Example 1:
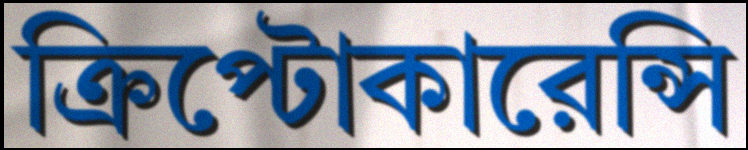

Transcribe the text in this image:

ক্রিপ্টোকারেন্সি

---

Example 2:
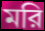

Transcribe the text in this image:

মরি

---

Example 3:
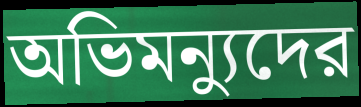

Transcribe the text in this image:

অভিমন্যুদের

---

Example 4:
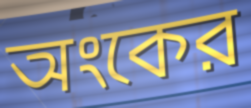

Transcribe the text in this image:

অংকের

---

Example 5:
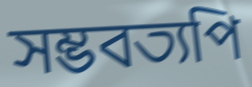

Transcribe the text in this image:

সম্ভবত্যপি